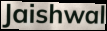
Jaishwal